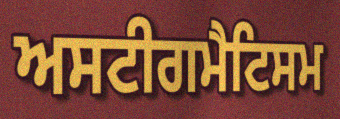
ਅਸਟੀਗਮੈਟਿਸਮ